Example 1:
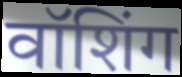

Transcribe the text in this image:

वॉशिंग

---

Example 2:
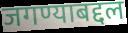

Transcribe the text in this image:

जगण्याबद्दल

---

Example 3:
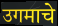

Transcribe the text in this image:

उगमाचे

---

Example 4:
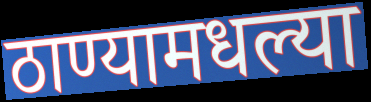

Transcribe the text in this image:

ठाण्यामधल्या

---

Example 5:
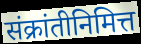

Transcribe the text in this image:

संक्रांतीनिमित्त